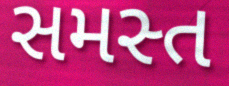
સમસ્ત